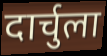
दार्चुला